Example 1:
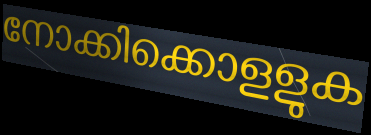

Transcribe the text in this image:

നോക്കിക്കൊളളുക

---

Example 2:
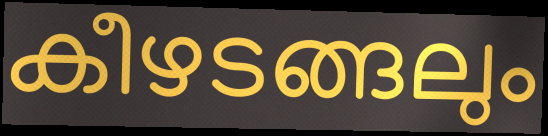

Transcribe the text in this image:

കീഴടങ്ങലും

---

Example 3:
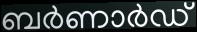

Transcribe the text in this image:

ബർണാർഡ്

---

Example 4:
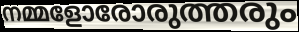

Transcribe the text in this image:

നമ്മളോരോരുത്തരും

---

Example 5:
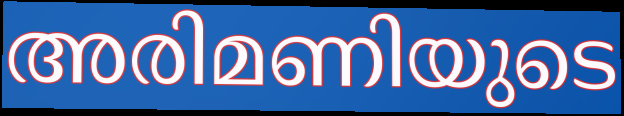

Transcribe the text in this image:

അരിമണിയുടെ